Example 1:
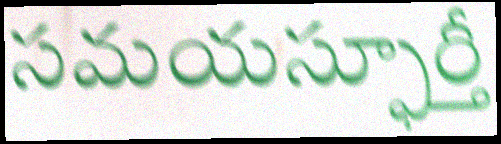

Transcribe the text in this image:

సమయస్ఫూర్తీ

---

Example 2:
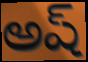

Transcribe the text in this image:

అష్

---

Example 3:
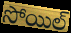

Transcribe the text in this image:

సోయిల్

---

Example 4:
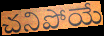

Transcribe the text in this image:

చనిపోయే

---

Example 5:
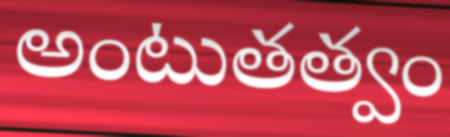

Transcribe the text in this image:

అంటుతత్వం